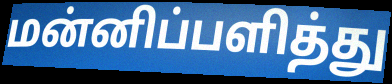
மன்னிப்பளித்து